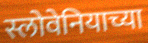
स्लोवेनियाच्या